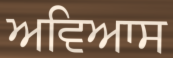
ਅਵਿਆਸ